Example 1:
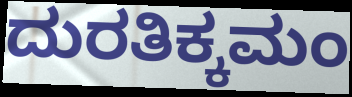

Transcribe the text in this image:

ದುರತಿಕ್ಕಮಂ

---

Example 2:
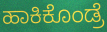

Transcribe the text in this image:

ಹಾಕಿಕೊಂಡ್ರೆ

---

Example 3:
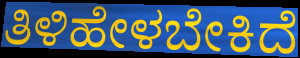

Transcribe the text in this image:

ತಿಳಿಹೇಳಬೇಕಿದೆ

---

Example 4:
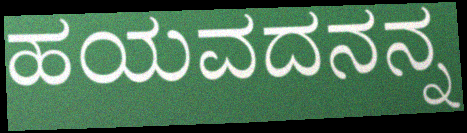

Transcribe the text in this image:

ಹಯವದನನ್ನ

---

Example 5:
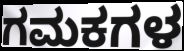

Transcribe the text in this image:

ಗಮಕಗಳ